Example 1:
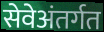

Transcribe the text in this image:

सेवेअंतर्गत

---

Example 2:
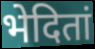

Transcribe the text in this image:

भेदितां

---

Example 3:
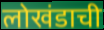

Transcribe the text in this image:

लोखंडाची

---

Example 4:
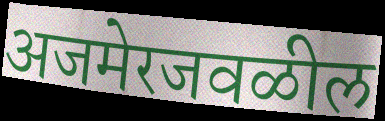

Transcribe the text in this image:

अजमेरजवळील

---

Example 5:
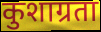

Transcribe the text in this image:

कुशाग्रता